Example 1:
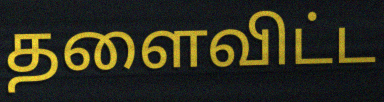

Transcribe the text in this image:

தளைவிட்ட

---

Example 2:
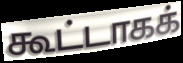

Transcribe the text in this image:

கூட்டாகக்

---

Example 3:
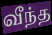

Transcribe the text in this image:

வீந்த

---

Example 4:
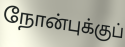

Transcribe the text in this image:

நோன்புக்குப்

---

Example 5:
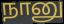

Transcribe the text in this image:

நானு